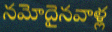
నమోదైనవాళ్ల